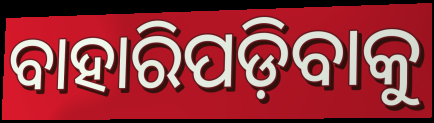
ବାହାରିପଡ଼ିବାକୁ